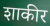
शाकीर